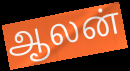
ஆலன்